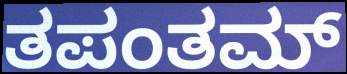
ತಪಂತಮ್